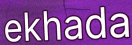
ekhada